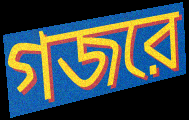
গজরে